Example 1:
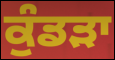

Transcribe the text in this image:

ਕੁੰਡੜਾ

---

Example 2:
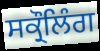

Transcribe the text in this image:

ਸਕ੍ਰੌਲਿੰਗ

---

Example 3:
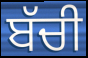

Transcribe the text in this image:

ਬੱਚੀ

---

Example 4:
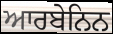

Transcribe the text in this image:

ਆਰਬੇਨਿਨ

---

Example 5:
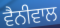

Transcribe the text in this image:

ਵੈਨੀਵਾਲ